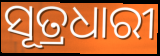
ସୂତ୍ରଧାରୀ